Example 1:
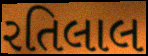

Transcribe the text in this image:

રતિલાલ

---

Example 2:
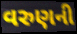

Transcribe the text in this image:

વરુણની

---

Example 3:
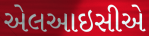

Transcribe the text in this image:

એલઆઇસીએ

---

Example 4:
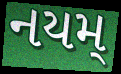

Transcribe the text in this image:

નયમ્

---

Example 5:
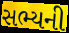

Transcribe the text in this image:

સભ્યની